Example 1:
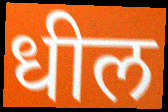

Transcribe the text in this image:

धील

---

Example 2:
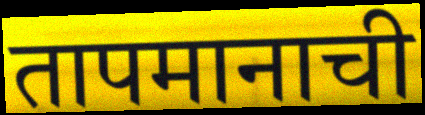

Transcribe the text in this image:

तापमानाची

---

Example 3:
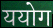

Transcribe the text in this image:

ययोग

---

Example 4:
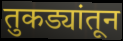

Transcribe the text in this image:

तुकड्यांतून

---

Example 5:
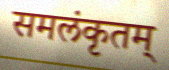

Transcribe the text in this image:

समलंकृतम्